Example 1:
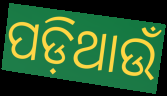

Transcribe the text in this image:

ପଡ଼ିଥାଉଁ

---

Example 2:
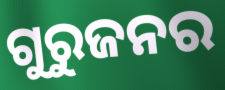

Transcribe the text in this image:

ଗୁରୁଜନର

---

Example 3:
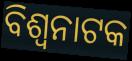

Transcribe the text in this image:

ବିଶ୍ୱନାଟକ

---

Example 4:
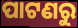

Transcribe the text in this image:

ପାଟଣରୁ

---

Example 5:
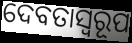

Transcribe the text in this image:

ଦେବତାସ୍ୱରୂପ